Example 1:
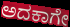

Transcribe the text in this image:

ಅದಕಾಗೇ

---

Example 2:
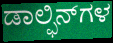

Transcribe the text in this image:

ಡಾಲ್ಫಿನ್‌ಗಳ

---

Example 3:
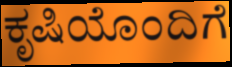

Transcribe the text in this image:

ಕೃಷಿಯೊಂದಿಗೆ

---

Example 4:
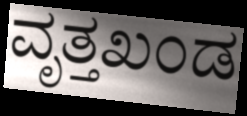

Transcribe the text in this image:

ವೃತ್ತಖಂಡ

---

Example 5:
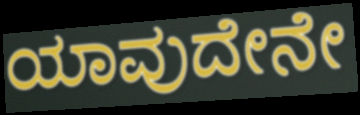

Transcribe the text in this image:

ಯಾವುದೇನೇ